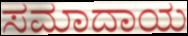
ಸಮಾದಾಯ